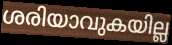
ശരിയാവുകയില്ല